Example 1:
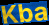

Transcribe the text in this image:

Kba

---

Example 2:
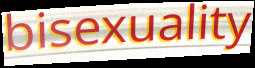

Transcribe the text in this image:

bisexuality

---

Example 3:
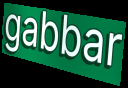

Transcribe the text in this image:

gabbar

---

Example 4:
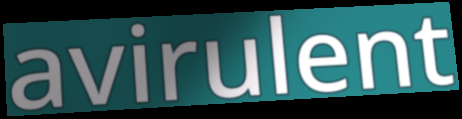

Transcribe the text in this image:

avirulent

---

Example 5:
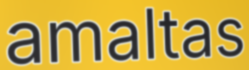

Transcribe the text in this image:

amaltas